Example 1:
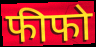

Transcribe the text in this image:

फीफो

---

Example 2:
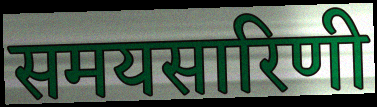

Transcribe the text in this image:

समयसारिणी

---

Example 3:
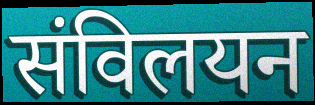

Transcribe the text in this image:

संविलयन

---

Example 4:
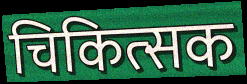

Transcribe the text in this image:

चिकित्‍सक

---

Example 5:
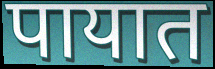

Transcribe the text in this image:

पायात